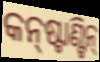
କନ୍‌ଷ୍ଟାଣ୍ଟିନ୍